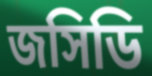
জসিডি